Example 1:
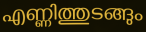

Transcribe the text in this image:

എണ്ണിത്തുടങ്ങും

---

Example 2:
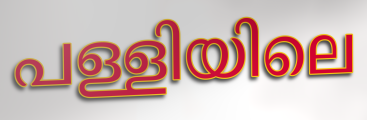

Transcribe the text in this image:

പള്ളിയിലെ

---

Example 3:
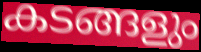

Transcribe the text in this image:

കടങ്ങളും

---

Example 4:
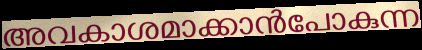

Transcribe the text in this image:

അവകാശമാക്കാൻപോകുന്ന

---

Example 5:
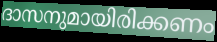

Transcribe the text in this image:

ദാസനുമായിരിക്കണം